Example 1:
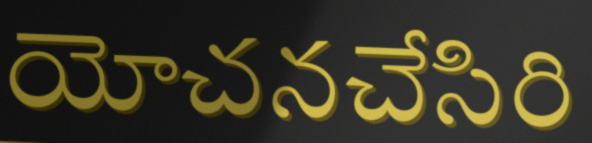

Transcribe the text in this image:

యోచనచేసిరి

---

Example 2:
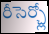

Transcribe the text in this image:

రీసెర్చ్లో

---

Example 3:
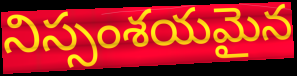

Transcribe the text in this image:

నిస్సంశయమైన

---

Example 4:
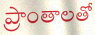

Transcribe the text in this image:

ప్రాంతాలతో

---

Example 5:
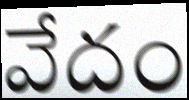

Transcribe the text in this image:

వేదం